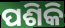
ପଶିକି